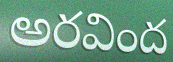
అరవింద